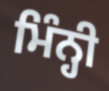
ਮਿੰਨ੍ਹੀ